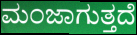
ಮಂಜಾಗುತ್ತದೆ